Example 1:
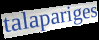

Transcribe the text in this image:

talapariges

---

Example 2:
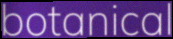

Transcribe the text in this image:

botanical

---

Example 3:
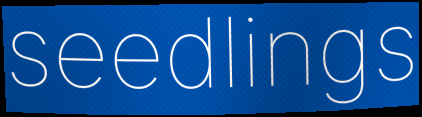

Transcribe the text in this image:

seedlings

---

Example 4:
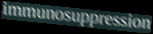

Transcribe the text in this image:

immunosuppression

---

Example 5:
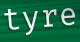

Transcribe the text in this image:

tyre